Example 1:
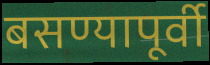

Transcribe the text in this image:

बसण्यापूर्वी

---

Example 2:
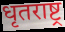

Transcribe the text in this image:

धृतराष्ट्र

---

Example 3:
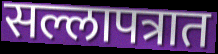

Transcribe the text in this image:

सल्लापत्रात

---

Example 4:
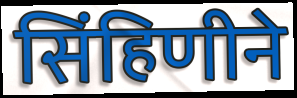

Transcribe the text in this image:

सिंहिणीने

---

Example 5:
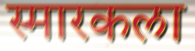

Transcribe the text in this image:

स्मारकला